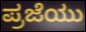
ಪ್ರಜೆಯು